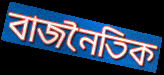
বাজনৈতিক